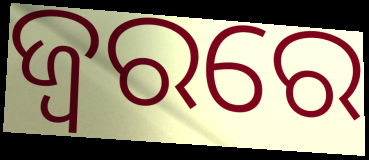
ଜ୍ବରରେ